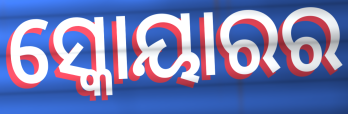
ସ୍କୋୟାରର